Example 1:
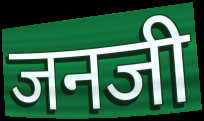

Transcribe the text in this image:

जनजी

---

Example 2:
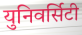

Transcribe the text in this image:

युनिवर्सिटी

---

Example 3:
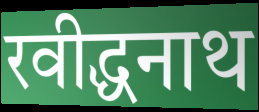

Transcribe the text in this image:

रवीद्धनाथ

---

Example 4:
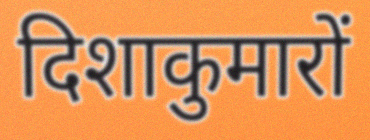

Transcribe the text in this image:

दिशाकुमारों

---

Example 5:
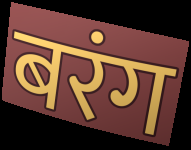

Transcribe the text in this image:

बरंग